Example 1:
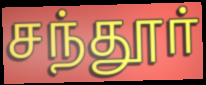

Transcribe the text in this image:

சந்தூர்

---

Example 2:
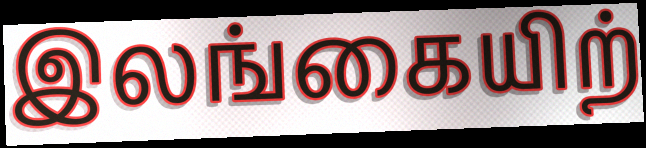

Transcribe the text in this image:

இலங்கையிற்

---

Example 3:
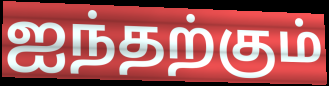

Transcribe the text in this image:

ஐந்தற்கும்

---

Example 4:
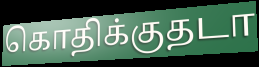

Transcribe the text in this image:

கொதிக்குதடா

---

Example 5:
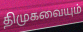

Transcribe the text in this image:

திமுகவையும்